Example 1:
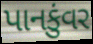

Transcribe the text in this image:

પાનકુંવર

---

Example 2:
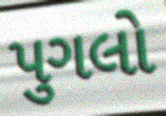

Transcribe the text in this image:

પુગલો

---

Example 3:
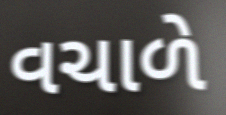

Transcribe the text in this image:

વચાળે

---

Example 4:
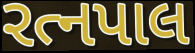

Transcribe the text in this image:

રત્નપાલ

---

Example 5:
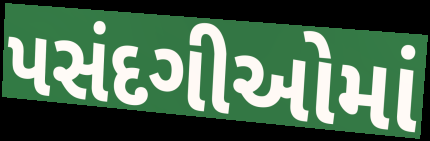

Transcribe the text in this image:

પસંદગીઓમાં